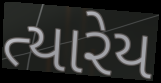
ત્યારેય